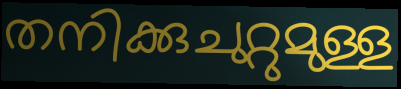
തനിക്കുചുറ്റുമുള്ള